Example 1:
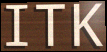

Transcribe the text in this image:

ITK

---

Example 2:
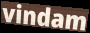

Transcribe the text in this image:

vindam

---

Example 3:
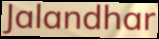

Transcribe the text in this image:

Jalandhar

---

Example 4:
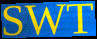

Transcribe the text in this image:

SWT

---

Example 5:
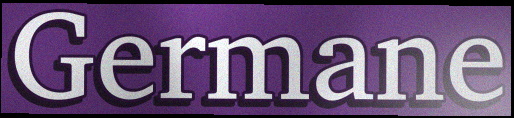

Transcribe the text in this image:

Germane